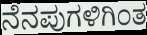
ನೆನಪುಗಳಿಗಿಂತ